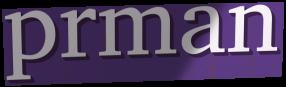
prman